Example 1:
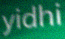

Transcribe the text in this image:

yidhi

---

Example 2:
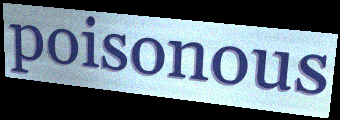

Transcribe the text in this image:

poisonous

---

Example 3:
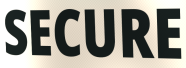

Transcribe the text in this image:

SECURE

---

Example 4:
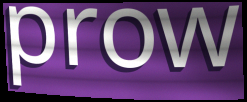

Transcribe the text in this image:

prow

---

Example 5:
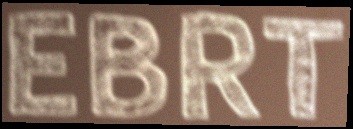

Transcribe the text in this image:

EBRT